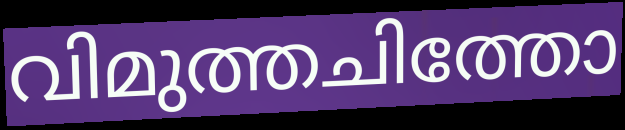
വിമുത്തചിത്തോ